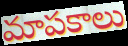
మాపకాలు